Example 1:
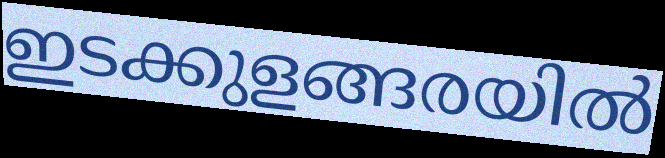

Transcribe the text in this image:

ഇടക്കുളങ്ങരയിൽ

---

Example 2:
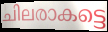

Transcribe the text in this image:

ചിലരാകട്ടെ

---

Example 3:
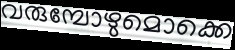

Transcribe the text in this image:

വരുമ്പോഴുമൊക്കെ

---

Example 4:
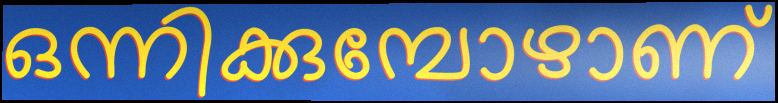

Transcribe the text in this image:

ഒന്നിക്കുമ്പോഴാണ്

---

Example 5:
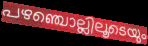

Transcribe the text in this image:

പഴഞ്ചൊല്ലിലൂടെയും